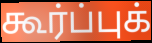
கூர்ப்புக்